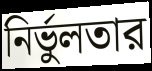
নির্ভুলতার